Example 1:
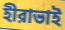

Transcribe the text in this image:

হীরাভাই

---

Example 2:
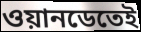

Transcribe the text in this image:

ওয়ানডেতেই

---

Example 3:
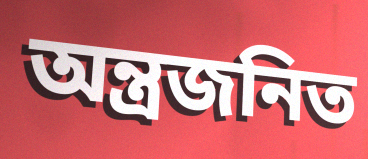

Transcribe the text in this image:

অন্ত্রজনিত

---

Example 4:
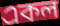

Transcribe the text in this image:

একল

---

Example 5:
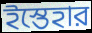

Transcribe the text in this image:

ইস্তেহার